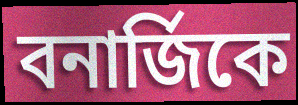
বনার্জিকে